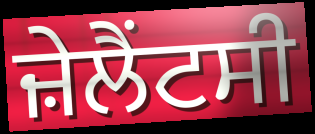
ਜ਼ੇਲੈਂਟਸੀ